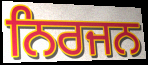
ਨਿਰਜਨ